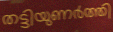
തട്ടിയുണർത്തി